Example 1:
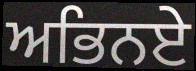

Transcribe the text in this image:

ਅਭਿਨਏ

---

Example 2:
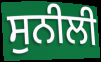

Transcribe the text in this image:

ਸੁਨੀਲੀ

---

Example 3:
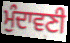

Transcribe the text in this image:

ਮੁੰਦਾਵਣੀ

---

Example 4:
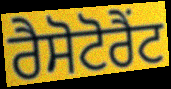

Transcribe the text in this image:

ਰੈਸੋਟੋਰੈਂਟ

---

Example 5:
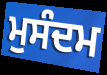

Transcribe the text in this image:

ਮੁਸੰਦਮ